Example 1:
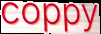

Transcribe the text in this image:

coppy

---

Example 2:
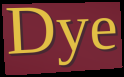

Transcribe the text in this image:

Dye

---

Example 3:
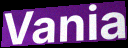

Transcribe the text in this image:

Vania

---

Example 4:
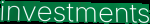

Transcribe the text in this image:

investments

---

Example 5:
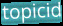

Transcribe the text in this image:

topicid